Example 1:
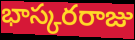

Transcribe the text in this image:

భాస్కరరాజు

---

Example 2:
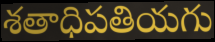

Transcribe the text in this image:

శతాధిపతియగు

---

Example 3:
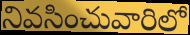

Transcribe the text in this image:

నివసించువారిలో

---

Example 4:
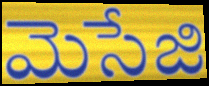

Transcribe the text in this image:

మెసేజి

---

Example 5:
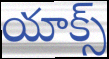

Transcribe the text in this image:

యాక్స్